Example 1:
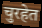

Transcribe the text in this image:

चुरहेत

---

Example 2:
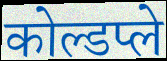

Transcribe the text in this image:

कोल्डप्ले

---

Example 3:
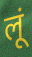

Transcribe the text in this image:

लूं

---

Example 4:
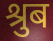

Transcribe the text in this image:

श्रुब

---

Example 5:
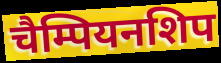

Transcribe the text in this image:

चैम्पियनशिप